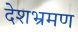
देशभ्रमण